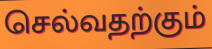
செல்வதற்கும்